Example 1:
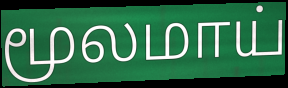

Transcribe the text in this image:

மூலமாய்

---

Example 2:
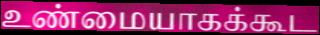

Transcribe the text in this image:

உண்மையாகக்கூட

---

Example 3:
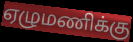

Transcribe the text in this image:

ஏழுமணிக்கு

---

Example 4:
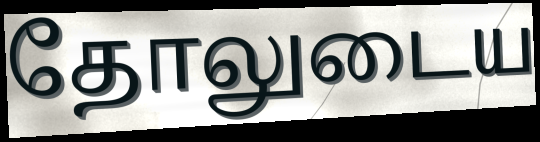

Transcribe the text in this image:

தோலுடைய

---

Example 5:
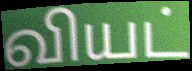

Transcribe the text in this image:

வியட்